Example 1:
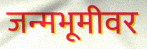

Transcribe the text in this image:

जन्मभूमीवर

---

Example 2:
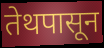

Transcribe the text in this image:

तेथपासून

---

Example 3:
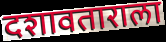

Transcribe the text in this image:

दशावताराला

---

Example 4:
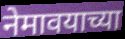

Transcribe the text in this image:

नेमावयाच्या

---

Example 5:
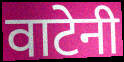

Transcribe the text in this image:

वाटेनी